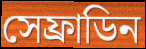
সেফ্রাডিন